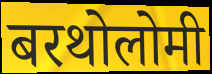
बरथोलोमी